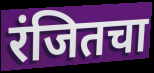
रंजितचा